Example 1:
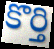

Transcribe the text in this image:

కొర్తి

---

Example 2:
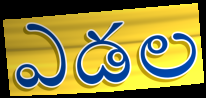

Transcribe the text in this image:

ఎడల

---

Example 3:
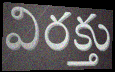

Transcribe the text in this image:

విరక్తు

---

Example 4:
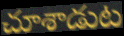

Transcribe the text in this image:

చూశాడుట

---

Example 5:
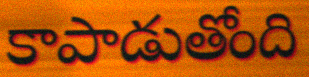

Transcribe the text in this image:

కాపాడుతోంది